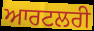
ਆਰਟਲਰੀ